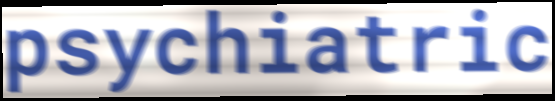
psychiatric